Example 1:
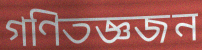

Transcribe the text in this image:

গণিতজ্ঞজন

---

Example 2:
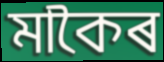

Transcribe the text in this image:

মাকৈৰ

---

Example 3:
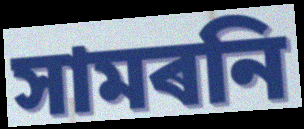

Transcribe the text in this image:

সামৰনি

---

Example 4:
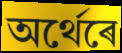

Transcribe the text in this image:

অৰ্থেৰে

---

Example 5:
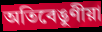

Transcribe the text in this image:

অতিবেঙুণীয়া